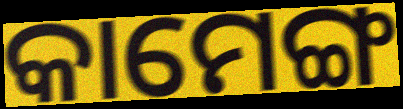
କାମେଙ୍ଗ